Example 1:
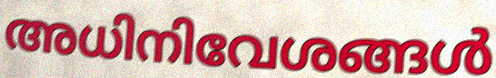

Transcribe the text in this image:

അധിനിവേശങ്ങൾ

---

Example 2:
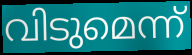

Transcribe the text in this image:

വിടുമെന്ന്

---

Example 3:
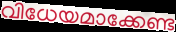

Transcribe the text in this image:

വിധേയമാക്കേണ്ട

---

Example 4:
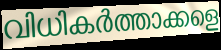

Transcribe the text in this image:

വിധികർത്താക്കളെ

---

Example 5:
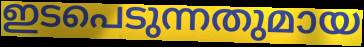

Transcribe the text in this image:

ഇടപെടുന്നതുമായ